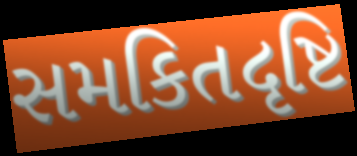
સમકિતદૃષ્ટિ